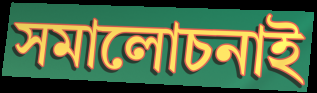
সমালোচনাই